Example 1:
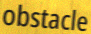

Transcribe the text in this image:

obstacle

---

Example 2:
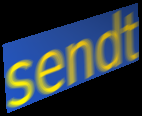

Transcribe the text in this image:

sendt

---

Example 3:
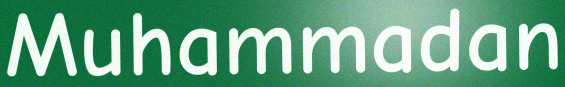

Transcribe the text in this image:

Muhammadan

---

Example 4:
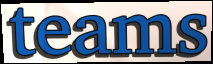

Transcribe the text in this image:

teams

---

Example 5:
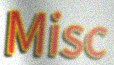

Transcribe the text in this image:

Misc